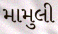
મામુલી